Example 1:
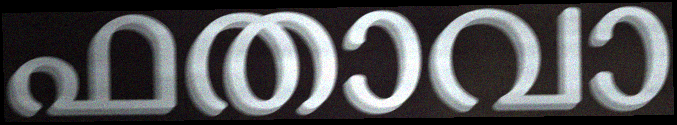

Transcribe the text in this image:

ഫതാവാ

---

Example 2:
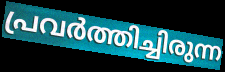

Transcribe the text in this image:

പ്രവർത്തിച്ചിരുന്ന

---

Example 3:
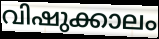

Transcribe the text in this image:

വിഷുക്കാലം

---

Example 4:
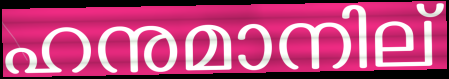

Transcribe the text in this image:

ഹനുമാനില്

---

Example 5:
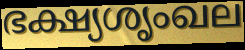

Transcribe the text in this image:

ഭക്ഷ്യശൃംഖല